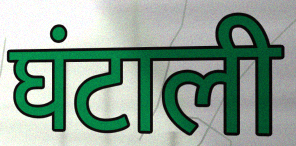
घंटाली